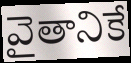
వైతానికే